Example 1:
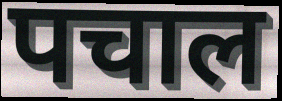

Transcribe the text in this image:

पचाल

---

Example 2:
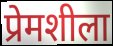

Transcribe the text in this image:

प्रेमशीला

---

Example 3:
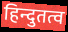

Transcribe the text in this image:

हिन्दुतत्व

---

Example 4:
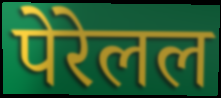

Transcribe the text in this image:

पेरेलल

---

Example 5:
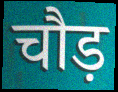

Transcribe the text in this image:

चौड़